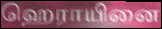
ஹெராயினை